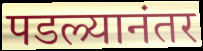
पडल्यानंतर